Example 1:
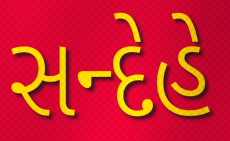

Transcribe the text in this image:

સન્દેહે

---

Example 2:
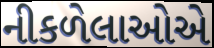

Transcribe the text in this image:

નીકળેલાઓએ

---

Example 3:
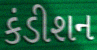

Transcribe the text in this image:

કંડીશન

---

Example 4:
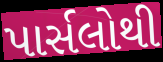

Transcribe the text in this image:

પાર્સલોથી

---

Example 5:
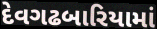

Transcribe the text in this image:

દેવગઢબારિયામાં